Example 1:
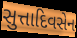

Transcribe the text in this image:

સુત્તાદિવસેન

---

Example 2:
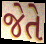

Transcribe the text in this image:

જેતે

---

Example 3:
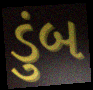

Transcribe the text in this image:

ડુંબ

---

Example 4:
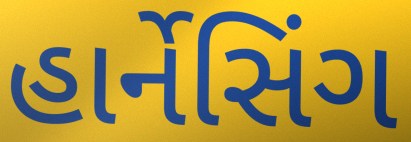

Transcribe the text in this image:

હાર્નેસિંગ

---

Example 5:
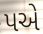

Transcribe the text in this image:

પએ